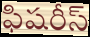
ఫిషరీస్